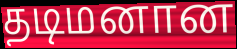
தடிமனான